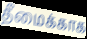
தீமைக்காக